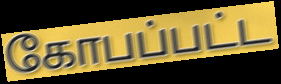
கோபப்பட்ட